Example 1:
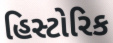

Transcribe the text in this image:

હિસ્ટોરિક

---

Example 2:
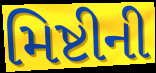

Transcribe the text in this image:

મિષ્ટીની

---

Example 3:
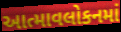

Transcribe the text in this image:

આત્માવલોકનમાં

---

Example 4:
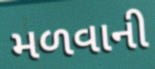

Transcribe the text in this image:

મળવાની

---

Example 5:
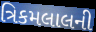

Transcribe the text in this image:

ત્રિકમલાલની